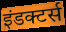
इंडक्टर्स